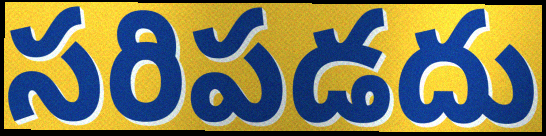
సరిపడదు